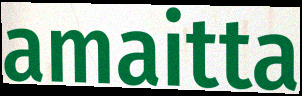
amaitta